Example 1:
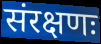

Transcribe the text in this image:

संरक्षणः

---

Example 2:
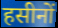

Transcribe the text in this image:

हसीनों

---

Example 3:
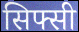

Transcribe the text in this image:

सिफ्सी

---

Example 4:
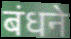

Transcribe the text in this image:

बंधने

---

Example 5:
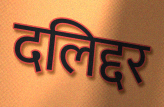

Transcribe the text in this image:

दलिद्दर